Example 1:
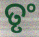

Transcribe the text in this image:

ତୃଂ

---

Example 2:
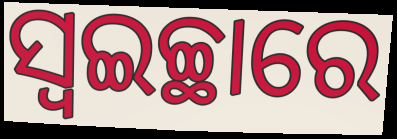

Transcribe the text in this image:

ସ୍ୱଇଚ୍ଛାରେ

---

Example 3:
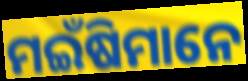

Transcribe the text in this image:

ମଇଁଷିମାନେ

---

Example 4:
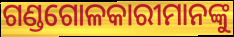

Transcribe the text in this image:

ଗଣ୍ଡଗୋଳକାରୀମାନଙ୍କୁ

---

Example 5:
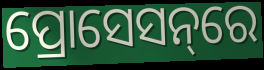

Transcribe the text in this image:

ପ୍ରୋସେସନ୍‌ରେ